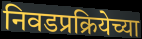
निवडप्रक्रियेच्या